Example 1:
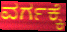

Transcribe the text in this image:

ವರ್ಗಕ್ಕೆ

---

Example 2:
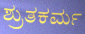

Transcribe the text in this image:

ಶ್ರುತಕರ್ಮ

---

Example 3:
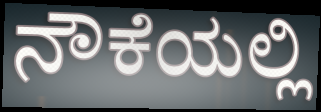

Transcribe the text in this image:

ನೌಕೆಯಲ್ಲಿ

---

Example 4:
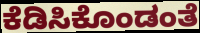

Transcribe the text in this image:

ಕೆಡಿಸಿಕೊಂಡಂತೆ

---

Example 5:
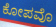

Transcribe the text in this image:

ಕೋಪವೊ